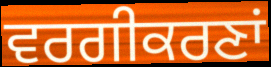
ਵਰਗੀਕਰਣਾਂ